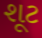
શૂટ